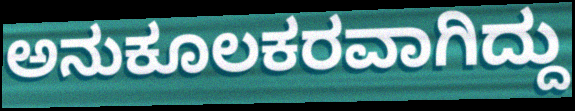
ಅನುಕೂಲಕರವಾಗಿದ್ದು